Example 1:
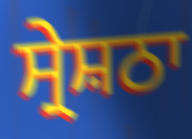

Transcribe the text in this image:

ਸ੍ਰੇਸ਼ਠਾ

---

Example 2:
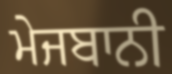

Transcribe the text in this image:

ਮੇਜਬਾਨੀ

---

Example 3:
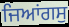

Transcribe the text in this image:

ਜਿਆਂਗਸੁ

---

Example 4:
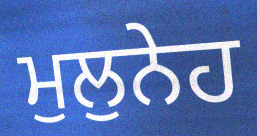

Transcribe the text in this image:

ਮੁਲੁਨੇਹ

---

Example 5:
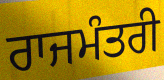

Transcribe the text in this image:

ਰਾਜਮੰਤਰੀ